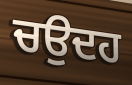
ਚਉਦਹ